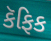
કૅફિક